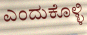
ಎಂದುಕೊಳ್ಳಿ